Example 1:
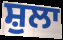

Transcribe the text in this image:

ਸ਼ੁਲਾ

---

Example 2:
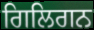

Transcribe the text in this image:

ਗਿਲਿਗਨ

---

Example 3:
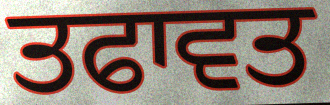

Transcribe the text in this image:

ਤਫਾਵਤ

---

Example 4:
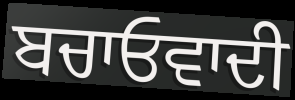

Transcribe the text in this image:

ਬਚਾਓਵਾਦੀ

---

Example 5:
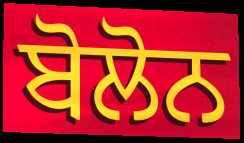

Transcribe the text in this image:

ਬੋਲੋਨ